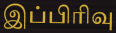
இப்பிரிவு